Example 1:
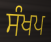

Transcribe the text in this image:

ਸੰਖਪ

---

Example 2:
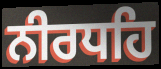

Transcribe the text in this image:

ਨੀਰਧਹਿ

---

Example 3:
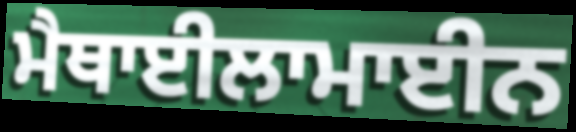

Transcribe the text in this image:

ਮੈਥਾਈਲਾਮਾਈਨ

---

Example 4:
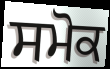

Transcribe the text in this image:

ਸਮੋਕ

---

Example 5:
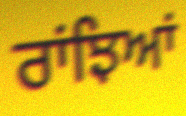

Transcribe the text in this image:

ਰਾਂਝਿਆਂ